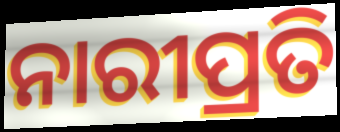
ନାରୀପ୍ରତି